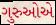
ગુરુઓએ